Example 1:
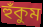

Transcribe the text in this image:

হুঁকুম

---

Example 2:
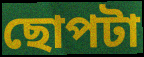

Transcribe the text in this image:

ছোপটা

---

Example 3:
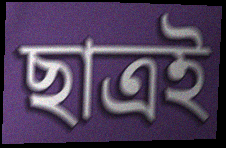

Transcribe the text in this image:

ছাত্রই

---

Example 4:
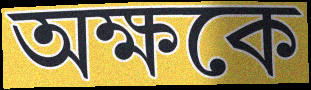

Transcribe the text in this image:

অক্ষকে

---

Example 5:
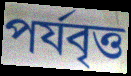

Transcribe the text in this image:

পর্যবৃত্ত